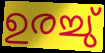
ഉരച്ചു്